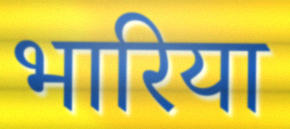
भारिया